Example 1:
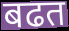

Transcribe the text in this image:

बढत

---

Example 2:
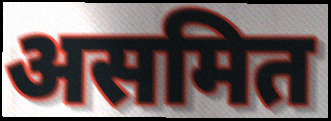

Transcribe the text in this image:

असमित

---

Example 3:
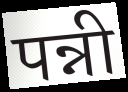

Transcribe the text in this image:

पन्नी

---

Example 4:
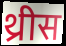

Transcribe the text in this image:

थ्रीस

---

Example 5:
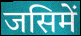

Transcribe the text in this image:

जसिमें